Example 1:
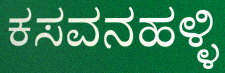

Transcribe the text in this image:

ಕಸವನಹಳ್ಳಿ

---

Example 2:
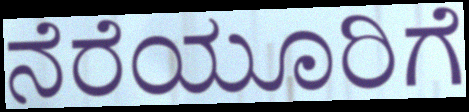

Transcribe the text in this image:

ನೆರೆಯೂರಿಗೆ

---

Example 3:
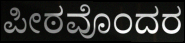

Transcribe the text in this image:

ಪೀಠವೊಂದರ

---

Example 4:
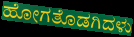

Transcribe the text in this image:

ಹೋಗತೊಡಗಿದಳು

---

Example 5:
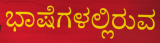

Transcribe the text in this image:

ಭಾಷೆಗಳಲ್ಲಿರುವ